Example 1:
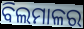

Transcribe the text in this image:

ବିଲମାଳର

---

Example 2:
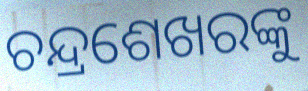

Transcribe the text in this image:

ଚନ୍ଦ୍ରଶେଖରଙ୍କୁ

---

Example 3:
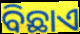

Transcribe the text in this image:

ବିଛାଏ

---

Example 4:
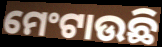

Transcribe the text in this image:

ମେଂଟାଉଛି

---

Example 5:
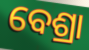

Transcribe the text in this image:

ବେଶ୍ରା